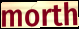
morth